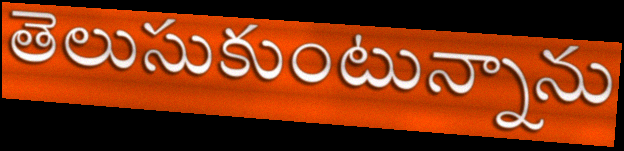
తెలుసుకుంటున్నాను